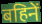
बहिनें